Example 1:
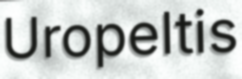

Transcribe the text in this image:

Uropeltis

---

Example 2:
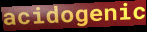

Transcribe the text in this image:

acidogenic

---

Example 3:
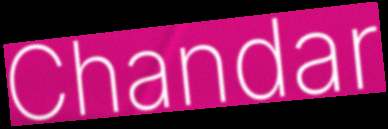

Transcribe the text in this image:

Chandar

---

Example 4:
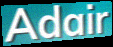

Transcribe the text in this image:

Adair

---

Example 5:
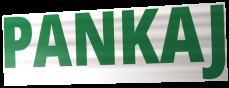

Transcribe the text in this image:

PANKAJ